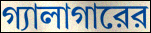
গ্যালাগারের